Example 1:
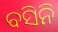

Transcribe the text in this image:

ବସିନି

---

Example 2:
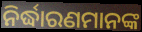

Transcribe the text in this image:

ନିର୍ଦ୍ଧାରଣମାନଙ୍କ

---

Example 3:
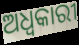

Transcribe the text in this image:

ଅଧ୍ବକାରୀ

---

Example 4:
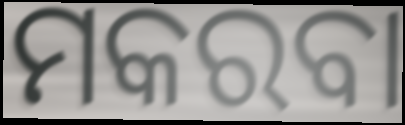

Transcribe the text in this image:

ମକରବା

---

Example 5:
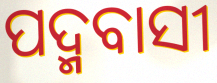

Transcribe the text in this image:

ପଦ୍ମବାସୀ